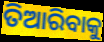
ତିଆରିବାକୁ